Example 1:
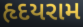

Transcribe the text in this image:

હૃદયરામ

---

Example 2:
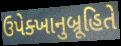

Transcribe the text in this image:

ઉપેક્ખાનુબ્રૂહિતે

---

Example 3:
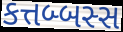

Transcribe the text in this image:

કત્તબ્બસ્સ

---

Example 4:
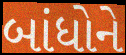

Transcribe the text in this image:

બાંધોને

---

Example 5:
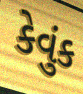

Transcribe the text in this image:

કેવુંક